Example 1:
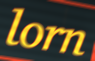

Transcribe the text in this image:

lorn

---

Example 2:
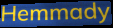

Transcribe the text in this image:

Hemmady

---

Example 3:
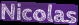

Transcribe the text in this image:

Nicolas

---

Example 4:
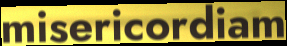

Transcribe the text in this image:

misericordiam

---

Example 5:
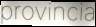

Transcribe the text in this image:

provincia